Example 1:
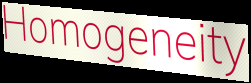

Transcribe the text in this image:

Homogeneity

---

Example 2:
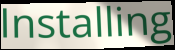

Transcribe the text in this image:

Installing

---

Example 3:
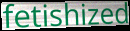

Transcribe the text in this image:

fetishized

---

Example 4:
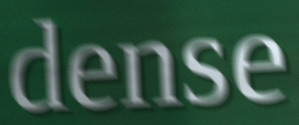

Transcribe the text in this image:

dense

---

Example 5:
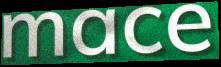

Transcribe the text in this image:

mace